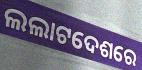
ଲଲାଟଦେଶରେ